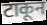
टाकून